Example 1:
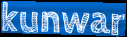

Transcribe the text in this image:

kunwar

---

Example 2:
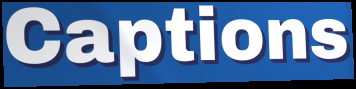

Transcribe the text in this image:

Captions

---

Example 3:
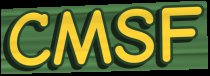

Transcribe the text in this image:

CMSF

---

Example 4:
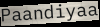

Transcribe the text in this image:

Paandiyaa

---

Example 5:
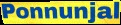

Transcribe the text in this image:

Ponnunjal